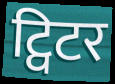
ट्विटर